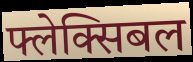
फ्लेक्सिबल